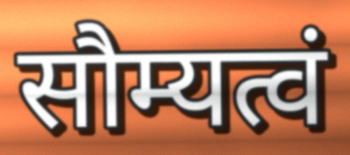
सौम्यत्वं